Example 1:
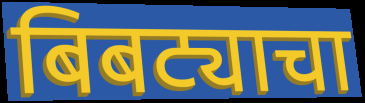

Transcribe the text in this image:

बिबट्याचा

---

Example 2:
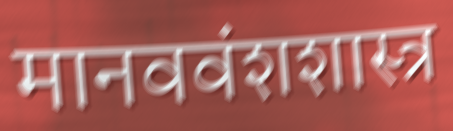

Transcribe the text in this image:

मानववंशशास्त्र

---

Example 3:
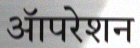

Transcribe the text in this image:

ॲापरेशन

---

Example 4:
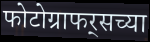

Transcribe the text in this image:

फोटोग्राफर्सच्या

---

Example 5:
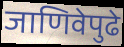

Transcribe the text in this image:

जाणिवेपुढे